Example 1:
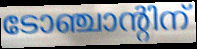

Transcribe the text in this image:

ടോഞ്ചാന്റിന്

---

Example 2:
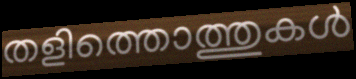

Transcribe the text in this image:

തളിത്തൊത്തുകൾ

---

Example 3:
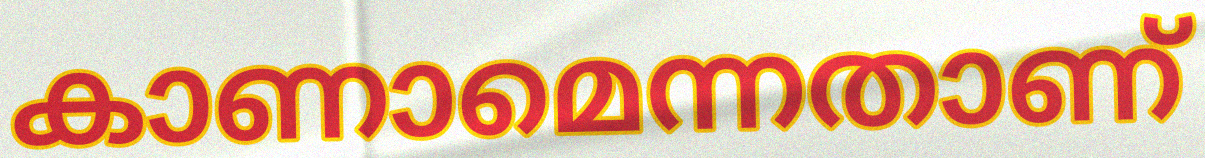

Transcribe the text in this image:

കാണാമെന്നതാണ്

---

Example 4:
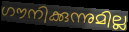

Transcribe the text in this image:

ഗൗനിക്കുന്നുമില്ല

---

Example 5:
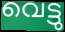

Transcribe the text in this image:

വെട്ടു